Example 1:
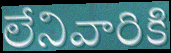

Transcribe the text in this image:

లేనివారికి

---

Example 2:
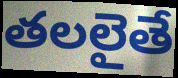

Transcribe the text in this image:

తలలైతే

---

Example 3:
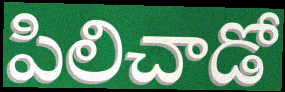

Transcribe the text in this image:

పిలిచాడో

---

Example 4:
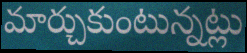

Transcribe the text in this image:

మార్చుకుంటున్నట్లు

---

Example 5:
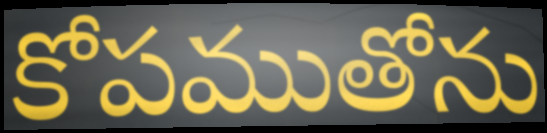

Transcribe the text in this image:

కోపముతోను